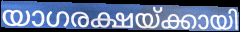
യാഗരക്ഷയ്ക്കായി